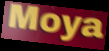
Moya